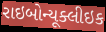
રાઇબોન્યૂક્લીઇક